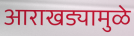
आराखड्यामुळे